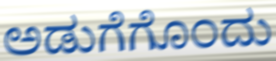
ಅಡುಗೆಗೊಂದು